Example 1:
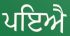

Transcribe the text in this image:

ਪਇਐ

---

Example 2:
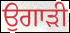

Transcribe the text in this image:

ਉਗਾੜੀ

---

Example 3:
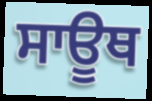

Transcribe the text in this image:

ਸਾਊਥ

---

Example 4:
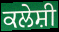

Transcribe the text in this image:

ਕਲੇਸ਼ੀ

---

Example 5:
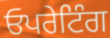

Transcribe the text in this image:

ਓਪਰੇਟਿੰਗ